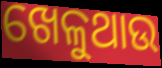
ଖେଳୁଥାଉ